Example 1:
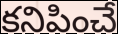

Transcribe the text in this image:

కనిపించే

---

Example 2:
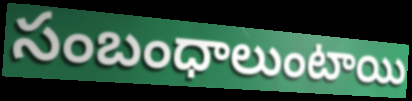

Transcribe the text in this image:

సంబంధాలుంటాయి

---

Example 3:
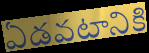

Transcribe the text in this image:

ఏడవటానికి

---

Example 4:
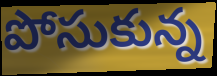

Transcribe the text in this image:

పోసుకున్న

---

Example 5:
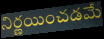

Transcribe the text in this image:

నిర్ణయించడమే